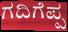
ಗದಿಗೆಪ್ಪ